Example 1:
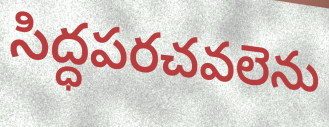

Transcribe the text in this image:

సిద్ధపరచవలెను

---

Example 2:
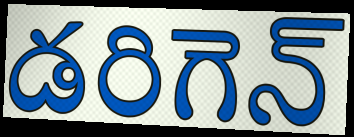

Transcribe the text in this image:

డరిగెన్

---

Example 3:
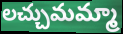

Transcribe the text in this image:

లచ్చుమమ్మా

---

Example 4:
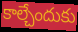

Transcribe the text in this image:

కాల్చేందుకు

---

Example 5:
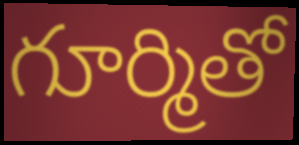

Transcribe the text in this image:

గూర్మితో